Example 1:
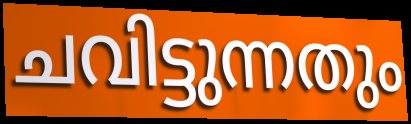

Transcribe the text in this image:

ചവിട്ടുന്നതും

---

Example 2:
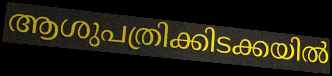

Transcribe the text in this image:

ആശുപത്രിക്കിടക്കയിൽ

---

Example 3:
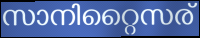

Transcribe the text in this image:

സാനിറ്റൈസര്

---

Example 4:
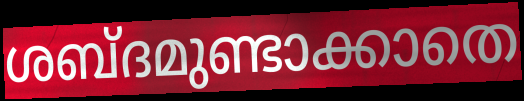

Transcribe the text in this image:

ശബ്ദമുണ്ടാക്കാതെ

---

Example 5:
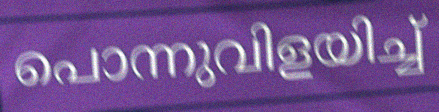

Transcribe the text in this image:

പൊന്നുവിളയിച്ച്